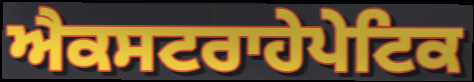
ਐਕਸਟਰਾਹੇਪੇਟਿਕ